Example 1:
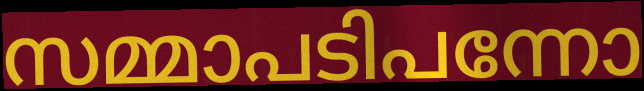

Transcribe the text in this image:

സമ്മാപടിപന്നോ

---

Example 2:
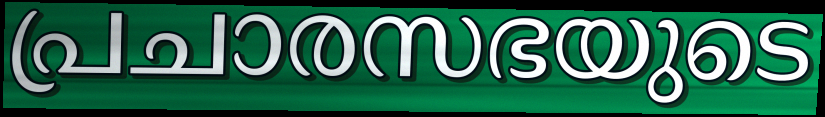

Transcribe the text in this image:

പ്രചാരസഭയുടെ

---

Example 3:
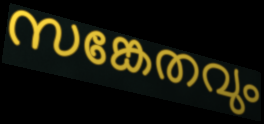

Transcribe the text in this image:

സങ്കേതവും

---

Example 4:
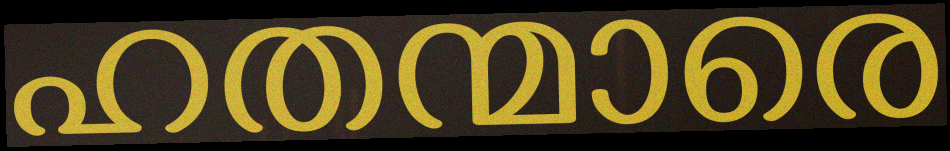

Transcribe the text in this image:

ഹതന്മാരെ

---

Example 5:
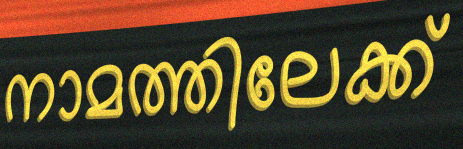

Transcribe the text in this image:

നാമത്തിലേക്ക്